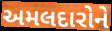
અમલદારોને